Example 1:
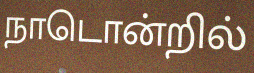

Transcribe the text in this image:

நாடொன்றில்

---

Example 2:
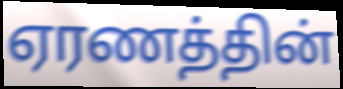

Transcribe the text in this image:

ஏரணத்தின்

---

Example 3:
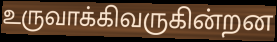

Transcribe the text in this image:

உருவாக்கிவருகின்றன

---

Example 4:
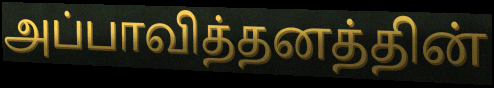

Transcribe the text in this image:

அப்பாவித்தனத்தின்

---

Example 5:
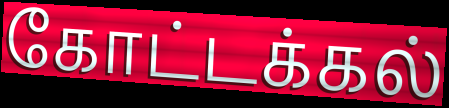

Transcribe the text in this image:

கோட்டக்கல்